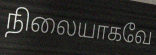
நிலையாகவே